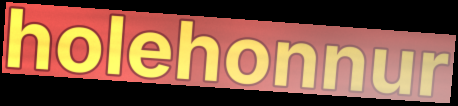
holehonnur